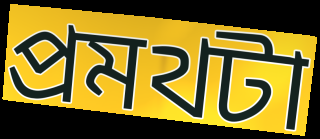
প্রমথটা